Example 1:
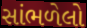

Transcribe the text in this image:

સાંભળેલો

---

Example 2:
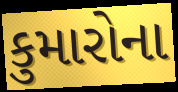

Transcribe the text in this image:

કુમારોના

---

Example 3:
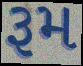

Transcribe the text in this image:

રૂમ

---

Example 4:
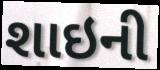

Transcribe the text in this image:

શાઇની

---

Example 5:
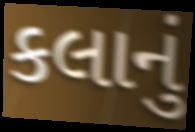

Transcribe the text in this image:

કલાનું